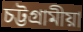
চট্টগ্ৰামীয়া